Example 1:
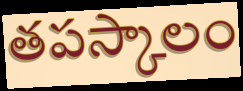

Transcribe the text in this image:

తపస్కాలం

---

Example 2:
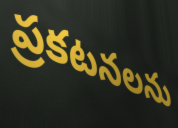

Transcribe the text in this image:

ప్రకటనలను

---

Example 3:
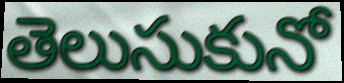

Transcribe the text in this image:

తెలుసుకునో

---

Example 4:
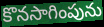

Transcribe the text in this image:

కొనసాగింపును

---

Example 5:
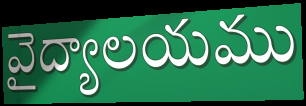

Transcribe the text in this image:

వైద్యాలయము